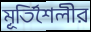
মূর্তিশৈলীর